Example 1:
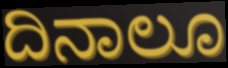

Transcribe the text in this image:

ದಿನಾಲೂ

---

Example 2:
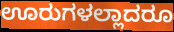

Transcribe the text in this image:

ಊರುಗಳಲ್ಲಾದರೂ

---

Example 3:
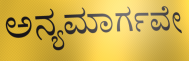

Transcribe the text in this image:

ಅನ್ಯಮಾರ್ಗವೇ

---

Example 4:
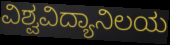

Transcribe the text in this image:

ವಿಶ್ವವಿದ್ಯಾನಿಲಯ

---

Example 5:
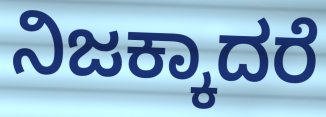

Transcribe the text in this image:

ನಿಜಕ್ಕಾದರೆ